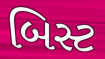
બિસ્ટ